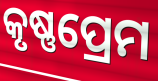
କୃଷ୍ଣପ୍ରେମ